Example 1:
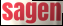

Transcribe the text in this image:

sagen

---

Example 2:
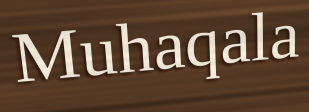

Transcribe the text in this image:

Muhaqala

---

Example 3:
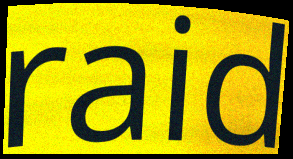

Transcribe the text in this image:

raid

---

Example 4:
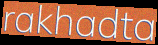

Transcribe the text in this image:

rakhadta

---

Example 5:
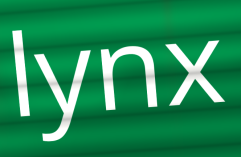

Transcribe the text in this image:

lynx